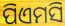
ପିଏମସି